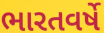
ભારતવર્ષે